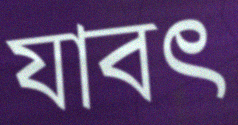
যাবৎ